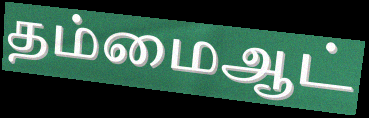
தம்மைஆட்